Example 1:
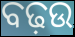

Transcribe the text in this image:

ବଢ଼ଉ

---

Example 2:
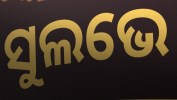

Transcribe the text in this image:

ସୁଲଭେ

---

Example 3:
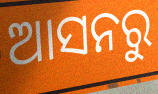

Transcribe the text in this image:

ଆସନରୁ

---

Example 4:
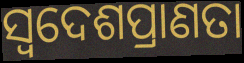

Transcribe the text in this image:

ସ୍ଵଦେଶପ୍ରାଣତା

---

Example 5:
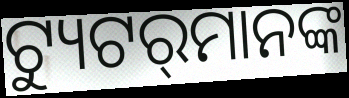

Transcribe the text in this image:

ଟ୍ୟୁଟର୍‍ମାନଙ୍କ